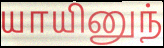
யாயினுந்